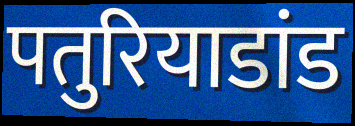
पतुरियाडांड